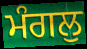
ਮੰਗਲੁ